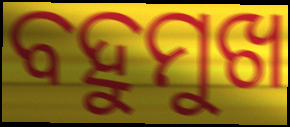
ବହୁମୁଖ